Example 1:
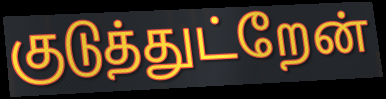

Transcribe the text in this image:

குடுத்துட்றேன்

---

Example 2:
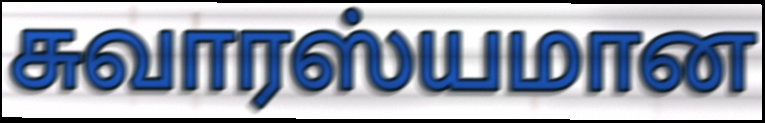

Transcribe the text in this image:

சுவாரஸ்யமான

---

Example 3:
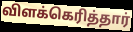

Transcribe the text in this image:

விளக்கெரித்தார்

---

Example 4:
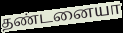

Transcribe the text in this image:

தண்டனையா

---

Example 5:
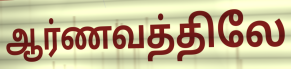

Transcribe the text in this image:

ஆர்ணவத்திலே